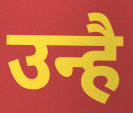
उन्है